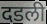
दडली